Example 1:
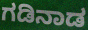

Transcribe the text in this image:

ಗಡಿನಾಡ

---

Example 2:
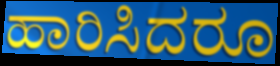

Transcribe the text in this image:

ಹಾರಿಸಿದರೂ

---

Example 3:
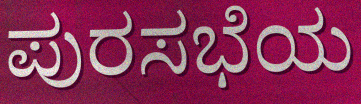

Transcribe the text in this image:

ಪುರಸಭೆಯ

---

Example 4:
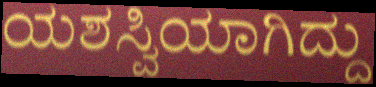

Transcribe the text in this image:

ಯಶಸ್ವಿಯಾಗಿದ್ದು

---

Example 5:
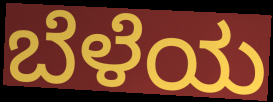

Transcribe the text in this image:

ಬೆಳೆಯ